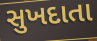
સુખદાતા